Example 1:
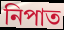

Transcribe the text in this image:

নিপাত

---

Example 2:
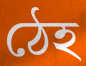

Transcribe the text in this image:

ঠেহ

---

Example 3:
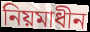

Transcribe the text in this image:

নিয়মাধীন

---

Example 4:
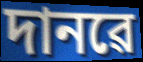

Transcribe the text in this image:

দানৱে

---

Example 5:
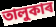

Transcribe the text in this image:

তালুকাৰ